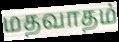
மதவாதம்